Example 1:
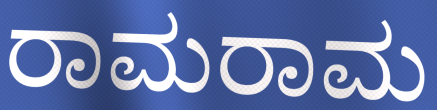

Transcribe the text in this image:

ರಾಮರಾಮ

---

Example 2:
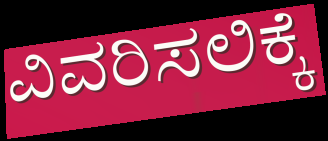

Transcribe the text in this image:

ವಿವರಿಸಲಿಕ್ಕೆ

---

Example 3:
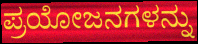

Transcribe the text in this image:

ಪ್ರಯೋಜನಗಳನ್ನು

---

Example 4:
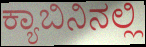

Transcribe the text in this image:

ಕ್ಯಾಬಿನಿನಲ್ಲಿ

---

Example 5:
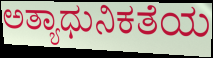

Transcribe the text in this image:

ಅತ್ಯಾಧುನಿಕತೆಯ